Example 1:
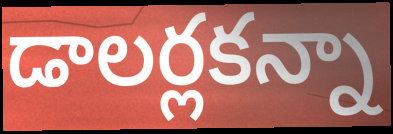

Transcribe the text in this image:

డాలర్లకన్నా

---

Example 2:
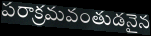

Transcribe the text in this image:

పరాక్రమవంతుడనైన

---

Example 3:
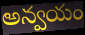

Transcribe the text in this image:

అన్వయం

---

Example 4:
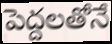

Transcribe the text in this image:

పెద్దలతోనే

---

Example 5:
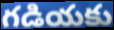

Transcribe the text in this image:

గడియకు